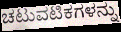
ಚಟುವಟಿಕಗಳನ್ನು